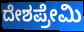
ದೇಶಪ್ರೇಮಿ